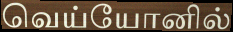
வெய்யோனில்